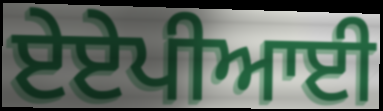
ਏਏਪੀਆਈ